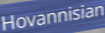
Hovannisian